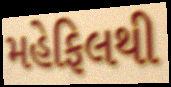
મહેફિલથી